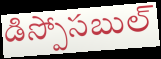
డిస్పోసబుల్